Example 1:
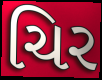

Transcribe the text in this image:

ચિર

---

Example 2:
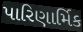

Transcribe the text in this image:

પારિણાર્મિક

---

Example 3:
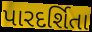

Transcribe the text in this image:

પારદર્શિતા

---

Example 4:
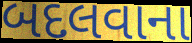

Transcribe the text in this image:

બદલવાના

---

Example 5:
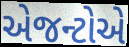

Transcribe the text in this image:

એજન્ટોએ